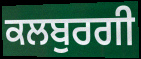
ਕਲਬੁਰਗੀ